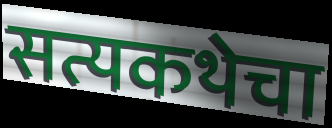
सत्यकथेचा